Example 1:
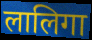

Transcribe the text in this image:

लालिगा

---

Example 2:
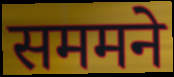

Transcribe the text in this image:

सममने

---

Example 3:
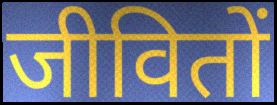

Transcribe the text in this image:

जीवितों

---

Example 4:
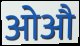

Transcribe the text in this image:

ओऔ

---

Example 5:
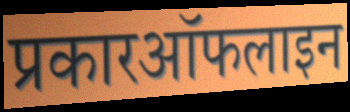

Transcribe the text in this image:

प्रकारऑफलाइन